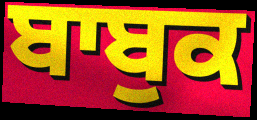
ਬਾਬੁਕ